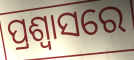
ପ୍ରଶ୍ଵାସରେ